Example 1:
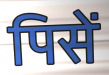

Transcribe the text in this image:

पिसें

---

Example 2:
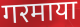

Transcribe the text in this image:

गरमाया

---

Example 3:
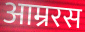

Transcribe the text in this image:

आम्ररस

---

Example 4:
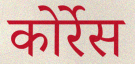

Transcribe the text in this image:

कोर्रेस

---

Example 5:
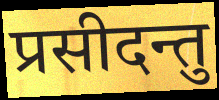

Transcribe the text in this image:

प्रसीदन्तु